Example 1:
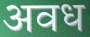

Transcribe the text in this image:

अवध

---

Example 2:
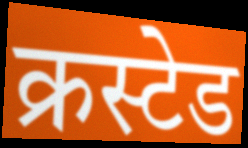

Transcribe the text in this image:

क्रस्टेड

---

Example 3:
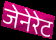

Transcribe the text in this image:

जेनेरेट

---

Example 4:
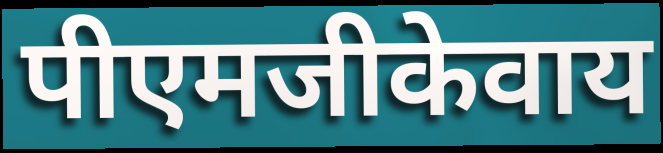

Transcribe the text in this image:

पीएमजीकेवाय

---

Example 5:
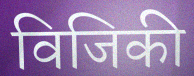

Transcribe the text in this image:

विजिकी